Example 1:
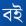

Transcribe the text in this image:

বই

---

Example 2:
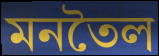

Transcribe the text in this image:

মনতৈল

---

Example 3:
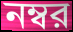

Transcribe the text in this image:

নম্বর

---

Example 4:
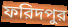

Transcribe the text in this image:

ফরিদপুর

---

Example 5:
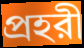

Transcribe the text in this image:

প্রহরী